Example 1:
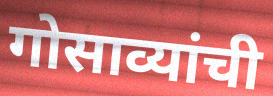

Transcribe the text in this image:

गोसाव्यांची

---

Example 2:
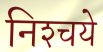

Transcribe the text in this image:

निश्चये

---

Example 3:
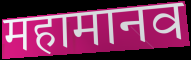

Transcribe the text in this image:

महामानव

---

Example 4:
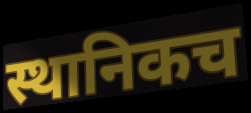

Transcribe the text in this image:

स्थानिकच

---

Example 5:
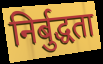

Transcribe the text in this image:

निर्बुद्धता